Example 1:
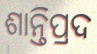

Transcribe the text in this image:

ଶାନ୍ତିପ୍ରଦ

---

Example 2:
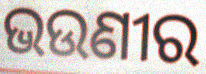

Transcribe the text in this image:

ଭଉଣୀର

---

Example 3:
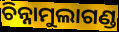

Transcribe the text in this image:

ଚିନ୍ନାମୁଲାଗଣ୍ଡ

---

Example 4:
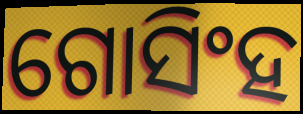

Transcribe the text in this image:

ଗୋସିଂହ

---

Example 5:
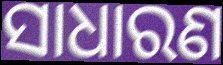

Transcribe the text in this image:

ସାଧାରଣ